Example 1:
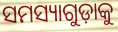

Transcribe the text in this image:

ସମସ୍ୟାଗୁଡ଼ାକୁ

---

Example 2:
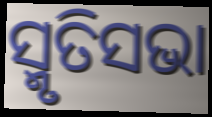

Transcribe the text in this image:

ସ୍ମୃତିସଭା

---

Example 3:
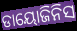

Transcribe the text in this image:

ଡାୟୋଜିନିସ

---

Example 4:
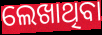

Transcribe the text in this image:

ଲେଖାଥିବା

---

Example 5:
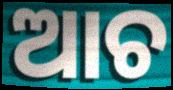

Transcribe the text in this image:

ଆଚ